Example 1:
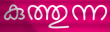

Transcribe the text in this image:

കുത്തുന്ന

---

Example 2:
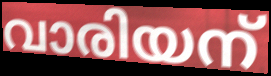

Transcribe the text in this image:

വാരിയന്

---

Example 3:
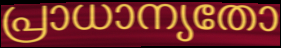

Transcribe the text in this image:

പ്രാധാന്യതോ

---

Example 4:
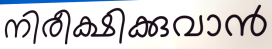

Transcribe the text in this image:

നിരീക്ഷിക്കുവാൻ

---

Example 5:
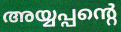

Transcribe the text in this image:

അയ്യപ്പന്റെ